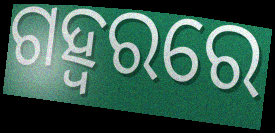
ଗହ୍ୱରରେ